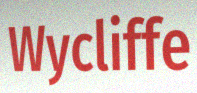
Wycliffe